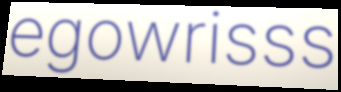
egowrisss